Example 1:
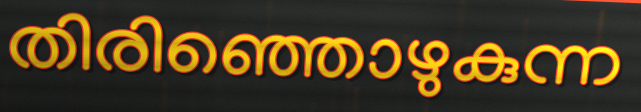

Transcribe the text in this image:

തിരിഞ്ഞൊഴുകുന്ന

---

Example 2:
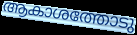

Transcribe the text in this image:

ആകാശത്തോടു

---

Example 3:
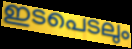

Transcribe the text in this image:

ഇടപെടലും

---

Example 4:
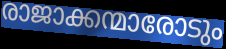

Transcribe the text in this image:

രാജാക്കന്മാരോടും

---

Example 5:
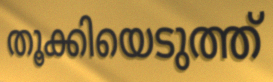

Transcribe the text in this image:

തൂക്കിയെടുത്ത്